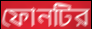
ফোনটির